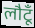
लौटूँ